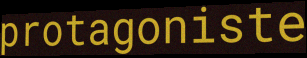
protagoniste